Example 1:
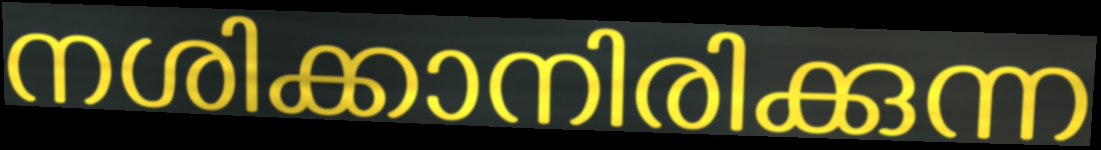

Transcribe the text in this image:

നശിക്കാനിരിക്കുന്ന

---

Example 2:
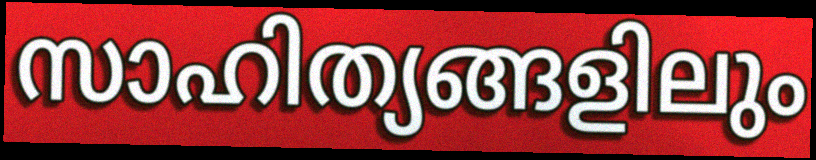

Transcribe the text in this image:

സാഹിത്യങ്ങളിലും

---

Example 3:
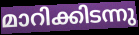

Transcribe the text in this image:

മാറിക്കിടന്നു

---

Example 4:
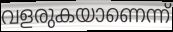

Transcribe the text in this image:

വളരുകയാണെന്ന്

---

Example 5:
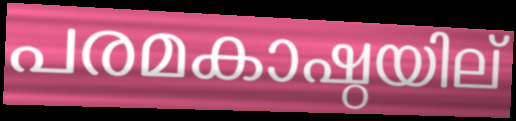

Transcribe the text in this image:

പരമകാഷ്ഠയില്